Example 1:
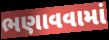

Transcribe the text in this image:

ભણાવવામાં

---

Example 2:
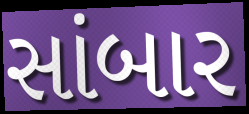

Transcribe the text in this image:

સાંબાર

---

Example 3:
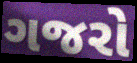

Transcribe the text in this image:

ગજરો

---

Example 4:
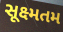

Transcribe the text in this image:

સૂક્ષ્મતમ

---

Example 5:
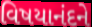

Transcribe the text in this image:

વિષયાનંદને